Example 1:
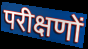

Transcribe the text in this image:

परीक्षणों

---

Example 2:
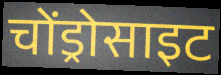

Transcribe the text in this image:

चोंड्रोसाइट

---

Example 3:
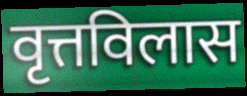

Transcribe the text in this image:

वृत्तविलास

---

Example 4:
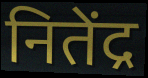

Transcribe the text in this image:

नितेंद्र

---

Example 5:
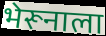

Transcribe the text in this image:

भेरूनाला